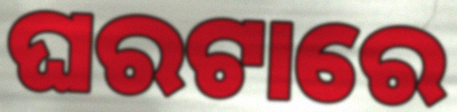
ଘରଟାରେ